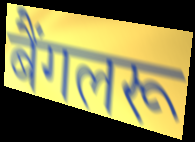
बैंगलरू